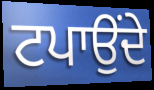
ਟਪਾਉਂਦੇ